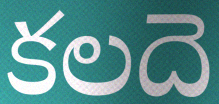
కలదె